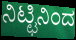
ನಿಟ್ಟಿನಿಂದ